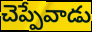
చెప్పేవాడు